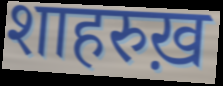
शाहरुख़